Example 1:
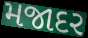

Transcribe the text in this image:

મજાદર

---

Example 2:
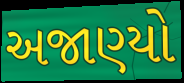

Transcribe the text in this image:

અજાણ્યો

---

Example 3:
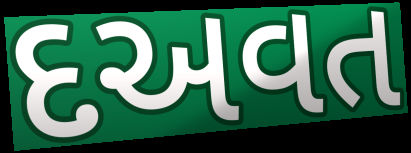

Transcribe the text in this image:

દઅવત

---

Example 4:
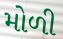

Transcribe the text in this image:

મોળી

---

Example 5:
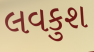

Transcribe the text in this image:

લવકુશ